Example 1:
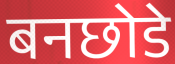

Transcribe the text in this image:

बनछोडे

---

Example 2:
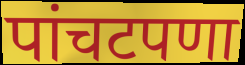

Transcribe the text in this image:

पांचटपणा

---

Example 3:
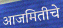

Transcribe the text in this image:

आजमितीचे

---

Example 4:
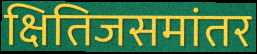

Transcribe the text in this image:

क्षितिजसमांतर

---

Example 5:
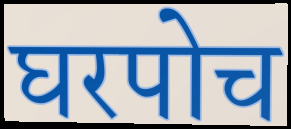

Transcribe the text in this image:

घरपोच